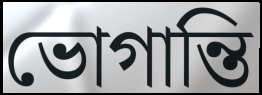
ভোগান্তি